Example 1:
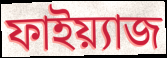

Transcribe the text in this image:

ফাইয়্যাজ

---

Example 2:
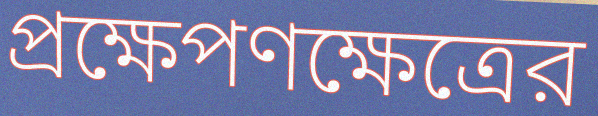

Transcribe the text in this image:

প্রক্ষেপণক্ষেত্রের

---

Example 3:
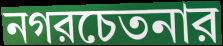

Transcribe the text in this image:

নগরচেতনার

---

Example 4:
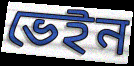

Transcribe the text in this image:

ভেইন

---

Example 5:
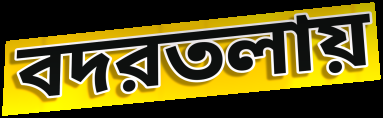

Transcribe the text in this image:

বদরতলায়